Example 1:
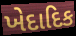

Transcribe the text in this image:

ખેદાદિક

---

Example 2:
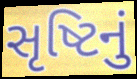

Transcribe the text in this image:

સૃષ્ટિનું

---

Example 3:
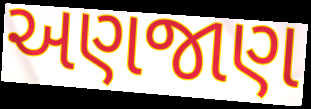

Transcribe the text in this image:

અણજાણ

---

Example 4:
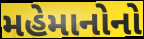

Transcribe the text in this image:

મહેમાનોનો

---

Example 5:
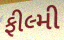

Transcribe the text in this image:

ફીલ્મી